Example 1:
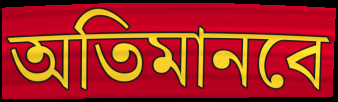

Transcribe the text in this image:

অতিমানবে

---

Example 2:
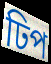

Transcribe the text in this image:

ঢিপ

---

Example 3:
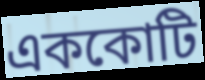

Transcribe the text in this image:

এককোটি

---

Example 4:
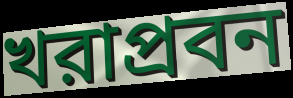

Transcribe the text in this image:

খরাপ্রবন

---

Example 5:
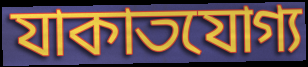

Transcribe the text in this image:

যাকাতযোগ্য